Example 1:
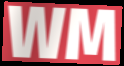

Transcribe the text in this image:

WM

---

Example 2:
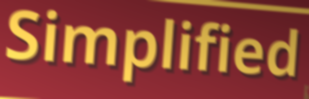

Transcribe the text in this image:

Simplified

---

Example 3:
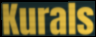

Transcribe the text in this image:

Kurals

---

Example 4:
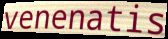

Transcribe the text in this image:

venenatis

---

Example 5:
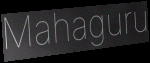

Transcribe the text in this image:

Mahaguru